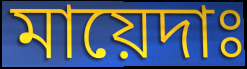
মায়েদাঃ